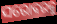
ସରୋବରକୁ